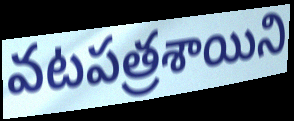
వటపత్రశాయిని